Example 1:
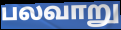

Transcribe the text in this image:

பலவாறு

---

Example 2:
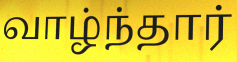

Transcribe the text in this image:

வாழ்ந்தார்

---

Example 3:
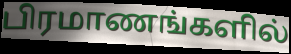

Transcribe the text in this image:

பிரமாணங்களில்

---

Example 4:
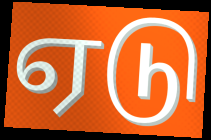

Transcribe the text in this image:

ஏடு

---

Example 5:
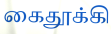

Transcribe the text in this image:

கைதூக்கி